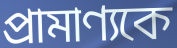
প্রামাণ্যকে